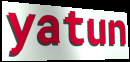
yatun